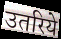
उतरिये